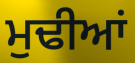
ਮੁਢੀਆਂ